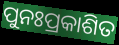
ପୁନଃପ୍ରକାଶିତ